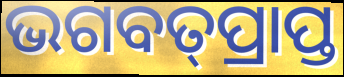
ଭଗବତ୍‌ପ୍ରାପ୍ତ